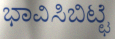
ಭಾವಿಸಿಬಿಟ್ಟೆ